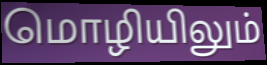
மொழியிலும்